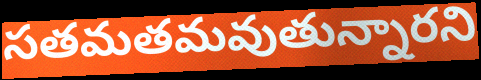
సతమతమవుతున్నారని